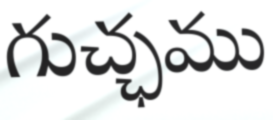
గుచ్ఛము